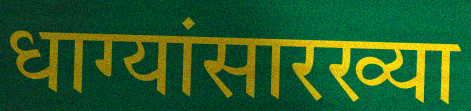
धाग्यांसारख्या